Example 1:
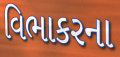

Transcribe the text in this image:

વિભાકરના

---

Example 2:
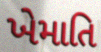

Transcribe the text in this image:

ખેમાતિ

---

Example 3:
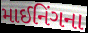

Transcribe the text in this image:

માઈનિંગના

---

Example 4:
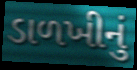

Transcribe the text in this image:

ડાળખીનું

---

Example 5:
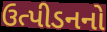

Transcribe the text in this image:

ઉત્પીડનનો